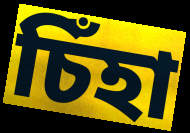
চিঁহা